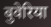
बुवेरिया